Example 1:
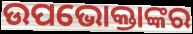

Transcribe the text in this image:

ଉପଭୋକ୍ତାଙ୍କର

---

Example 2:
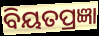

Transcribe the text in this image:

ବିୟତପ୍ରଜ୍ଞା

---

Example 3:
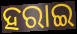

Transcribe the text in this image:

ହରାଇ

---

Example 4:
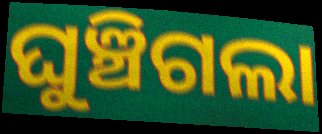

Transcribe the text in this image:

ଘୁଞ୍ଚିଗଲା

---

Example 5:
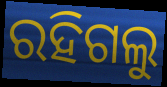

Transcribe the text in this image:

ରହିଗଲୁ